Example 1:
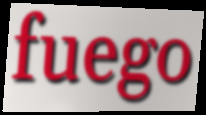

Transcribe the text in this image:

fuego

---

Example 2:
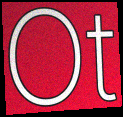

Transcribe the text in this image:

Ot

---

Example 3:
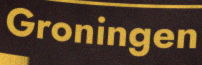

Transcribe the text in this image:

Groningen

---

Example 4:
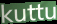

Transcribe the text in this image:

kuttu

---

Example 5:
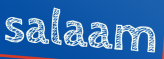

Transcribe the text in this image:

salaam